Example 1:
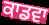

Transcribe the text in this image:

ਕਾਡਵਾ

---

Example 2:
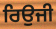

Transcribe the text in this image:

ਰਿਉਜੀ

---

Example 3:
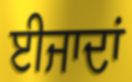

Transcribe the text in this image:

ਈਜਾਦਾਂ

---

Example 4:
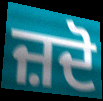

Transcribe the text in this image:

ਜ਼ਦੋ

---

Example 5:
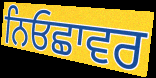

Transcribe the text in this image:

ਨਿਓਛਾਵਰ